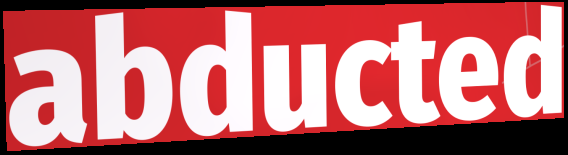
abducted